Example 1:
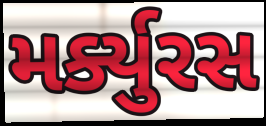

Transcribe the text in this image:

મર્ક્યુરસ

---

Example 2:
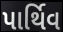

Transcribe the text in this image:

પાર્થિવ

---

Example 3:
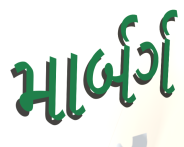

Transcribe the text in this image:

માર્બર્ગ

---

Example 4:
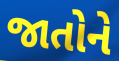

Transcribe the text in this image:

જાતોને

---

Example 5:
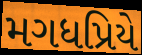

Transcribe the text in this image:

મગધપ્રિયે